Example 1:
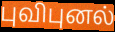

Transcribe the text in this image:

புவிபுனல்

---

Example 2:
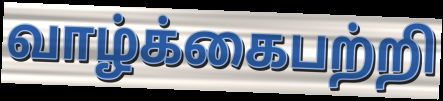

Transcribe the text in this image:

வாழ்க்கைபற்றி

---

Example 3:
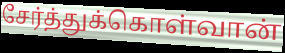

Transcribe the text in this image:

சேர்த்துக்கொள்வான்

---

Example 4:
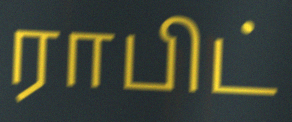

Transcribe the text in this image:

ராபிட்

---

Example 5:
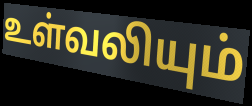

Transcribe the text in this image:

உள்வலியும்